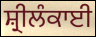
ਸ਼੍ਰੀਲੰਕਾਈ